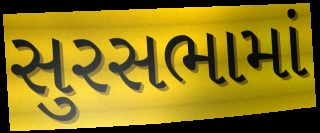
સુરસભામાં